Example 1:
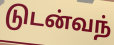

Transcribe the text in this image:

டுடன்வந்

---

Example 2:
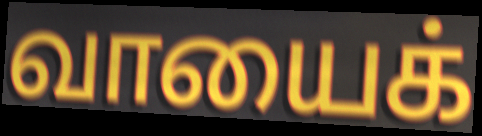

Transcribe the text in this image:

வாயைக்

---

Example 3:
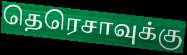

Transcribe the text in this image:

தெரெசாவுக்கு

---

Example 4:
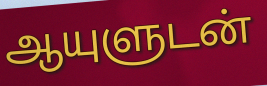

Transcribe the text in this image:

ஆயுளுடன்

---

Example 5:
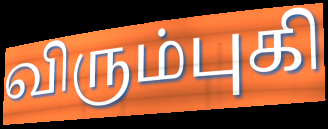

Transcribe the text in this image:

விரும்புகி